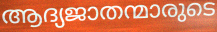
ആദ്യജാതന്മാരുടെ